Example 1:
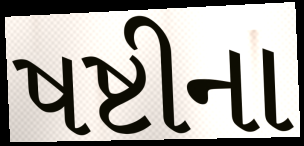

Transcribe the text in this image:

ષષ્ટીના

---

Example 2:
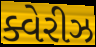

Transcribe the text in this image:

ક્વેરીઝ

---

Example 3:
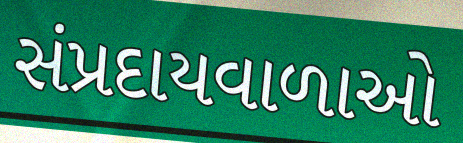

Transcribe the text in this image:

સંપ્રદાયવાળાઓ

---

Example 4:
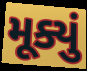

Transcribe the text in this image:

મૂક્યું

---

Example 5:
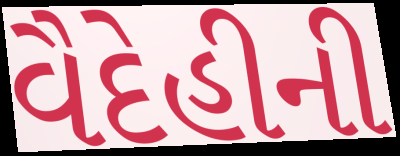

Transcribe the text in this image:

વૈદેહીની